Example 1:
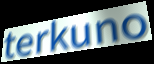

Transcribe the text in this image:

terkuno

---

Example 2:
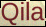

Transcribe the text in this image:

Qila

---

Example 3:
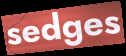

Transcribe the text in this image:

sedges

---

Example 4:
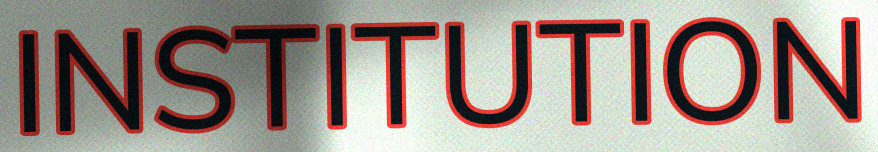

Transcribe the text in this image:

INSTITUTION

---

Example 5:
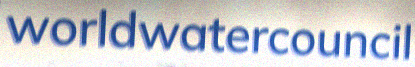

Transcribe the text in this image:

worldwatercouncil